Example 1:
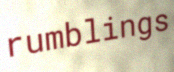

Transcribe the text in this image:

rumblings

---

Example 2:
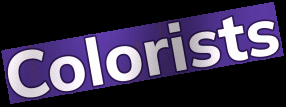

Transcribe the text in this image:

Colorists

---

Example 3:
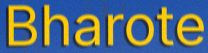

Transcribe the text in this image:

Bharote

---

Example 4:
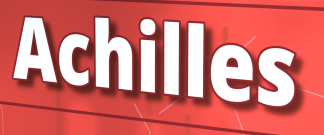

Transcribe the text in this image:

Achilles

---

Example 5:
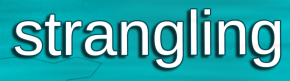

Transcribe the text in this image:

strangling